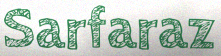
Sarfaraz